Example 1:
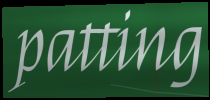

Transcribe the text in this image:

patting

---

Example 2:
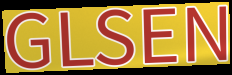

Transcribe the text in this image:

GLSEN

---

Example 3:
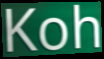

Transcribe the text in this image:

Koh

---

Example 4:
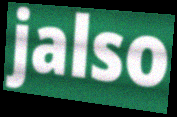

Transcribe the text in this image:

jalso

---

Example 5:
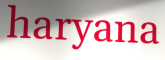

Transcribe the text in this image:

haryana